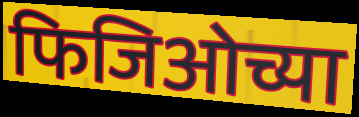
फिजिओच्या